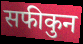
सफीकुन